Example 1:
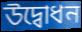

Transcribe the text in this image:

উদ্বোধন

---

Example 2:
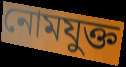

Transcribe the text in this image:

নোমযুক্ত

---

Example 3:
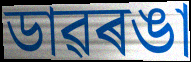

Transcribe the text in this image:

ডাৱৰঙা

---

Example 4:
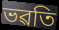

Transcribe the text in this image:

ভৱতি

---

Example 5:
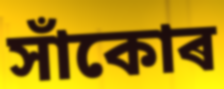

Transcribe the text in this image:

সাঁকোৰ